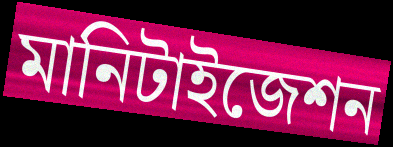
মানিটাইজেশন